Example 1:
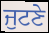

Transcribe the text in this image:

ਜੁਟਣੇ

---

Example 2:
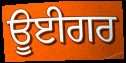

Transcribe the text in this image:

ਊਈਗਰ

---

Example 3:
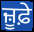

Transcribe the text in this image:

ਜ਼ੂਫ਼ੇ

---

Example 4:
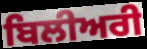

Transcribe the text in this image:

ਬਿਲੀਅਰੀ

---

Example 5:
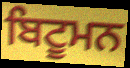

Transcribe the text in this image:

ਬਿਟੂਮਨ